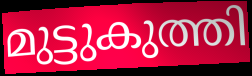
മുട്ടുകുത്തി